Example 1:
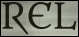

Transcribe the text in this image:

REL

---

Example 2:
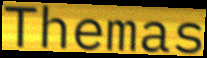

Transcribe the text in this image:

Themas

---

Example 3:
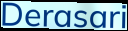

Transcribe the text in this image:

Derasari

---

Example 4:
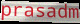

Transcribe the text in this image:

prasadm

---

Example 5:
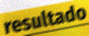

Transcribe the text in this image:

resultado